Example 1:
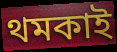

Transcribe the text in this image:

থমকাই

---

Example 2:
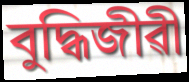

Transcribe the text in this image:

বুদ্ধিজীৱী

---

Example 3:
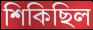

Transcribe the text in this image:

শিকিছিল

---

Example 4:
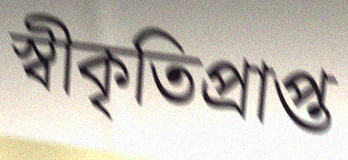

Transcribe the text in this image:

স্বীকৃতিপ্ৰাপ্ত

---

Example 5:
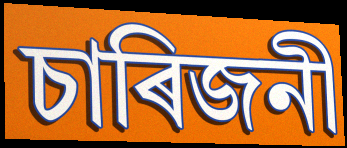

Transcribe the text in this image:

চাৰিজনী